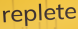
replete